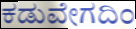
ಕಡುವೇಗದಿಂ